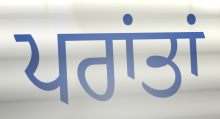
ਪਰਾਂਤਾਂ